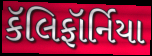
કૅલિફૉર્નિયા